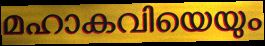
മഹാകവിയെയും